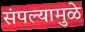
संपल्यामुळे